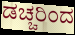
ಡಚ್ಚರಿಂದ